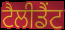
ਟੈਲੀਡੈਂਟ